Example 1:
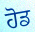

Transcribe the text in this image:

ਹੋਡ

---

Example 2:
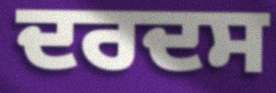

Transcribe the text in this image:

ਦਰਦਸ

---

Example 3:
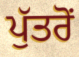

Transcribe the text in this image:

ਪੁੱਤਰੋਂ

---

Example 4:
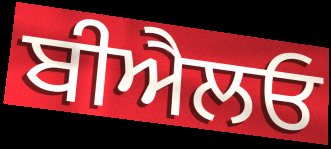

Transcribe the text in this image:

ਬੀਐਲਓ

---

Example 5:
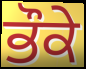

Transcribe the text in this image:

ਭੌਕੇ